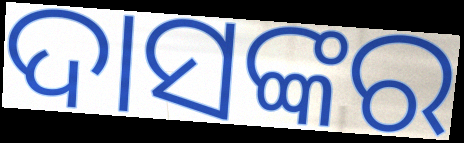
ଦାସଙ୍କର